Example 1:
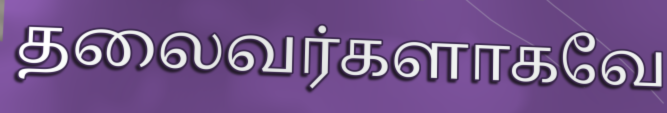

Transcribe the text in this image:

தலைவர்களாகவே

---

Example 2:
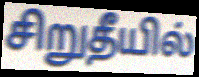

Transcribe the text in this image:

சிறுதீயில்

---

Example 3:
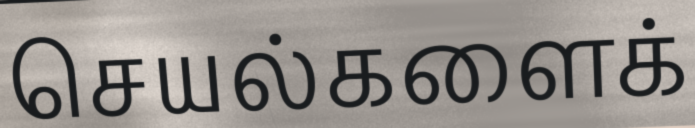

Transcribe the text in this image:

செயல்களைக்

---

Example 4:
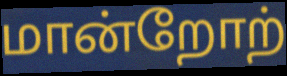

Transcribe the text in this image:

மான்றோற்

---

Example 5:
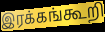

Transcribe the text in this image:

இரக்கங்கூறி